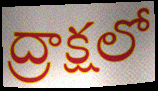
ద్రాక్షలో